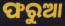
ଫରୁଆ